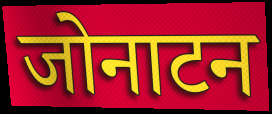
जोनाटन